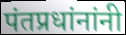
पंतप्रधांनांनी